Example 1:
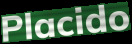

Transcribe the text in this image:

Placido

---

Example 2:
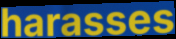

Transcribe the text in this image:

harasses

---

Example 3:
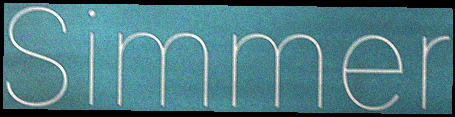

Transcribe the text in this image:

Simmer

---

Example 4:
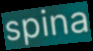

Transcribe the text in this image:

spina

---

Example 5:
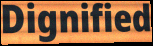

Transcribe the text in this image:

Dignified